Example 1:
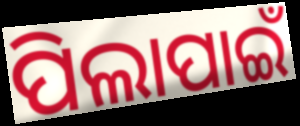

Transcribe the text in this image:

ପିଲାପାଇଁ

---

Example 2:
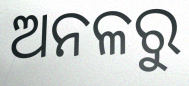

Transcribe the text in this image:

ଅନଳରୁ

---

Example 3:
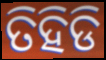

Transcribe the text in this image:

ତିହିଡି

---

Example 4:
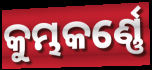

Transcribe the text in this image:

କୁମ୍ଭକର୍ଣ୍ଣେ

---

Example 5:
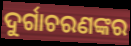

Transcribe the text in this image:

ଦୁର୍ଗାଚରଣଙ୍କର